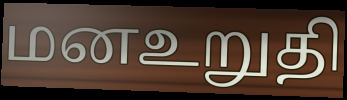
மனஉறுதி